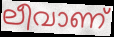
ലീവാണ്